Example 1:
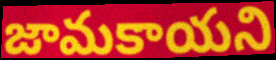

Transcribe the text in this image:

జామకాయని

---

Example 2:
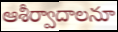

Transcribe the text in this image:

ఆశీర్వాదాలనూ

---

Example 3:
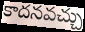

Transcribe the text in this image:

కాదనవచ్చు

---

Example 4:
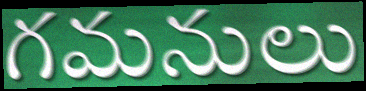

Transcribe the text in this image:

గమనులు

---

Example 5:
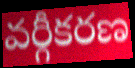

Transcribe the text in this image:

వర్గీకరణ